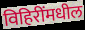
विहिरींमधील